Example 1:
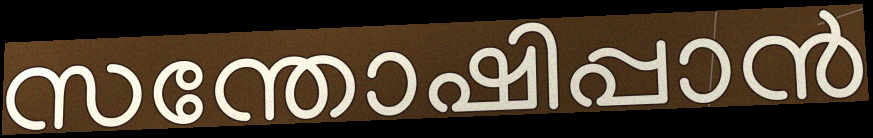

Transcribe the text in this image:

സന്തോഷിപ്പാൻ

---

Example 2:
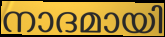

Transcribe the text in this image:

നാദമായി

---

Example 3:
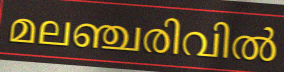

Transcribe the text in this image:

മലഞ്ചരിവിൽ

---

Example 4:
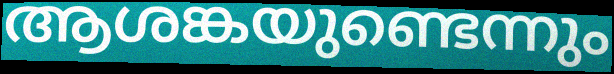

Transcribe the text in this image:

ആശങ്കയുണ്ടെന്നും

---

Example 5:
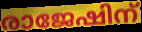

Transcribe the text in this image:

രാജേഷിന്